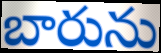
బారును